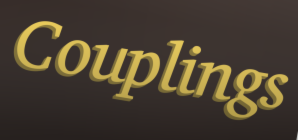
Couplings